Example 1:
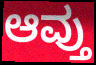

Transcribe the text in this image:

ಆವ್ತು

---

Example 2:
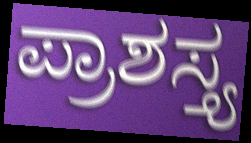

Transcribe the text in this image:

ಪ್ರಾಶಸ್ತ್ಯ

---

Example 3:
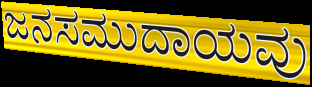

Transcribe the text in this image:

ಜನಸಮುದಾಯವು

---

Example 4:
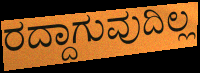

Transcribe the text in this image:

ರದ್ದಾಗುವುದಿಲ್ಲ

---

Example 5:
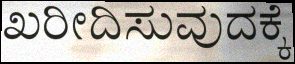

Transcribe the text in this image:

ಖರೀದಿಸುವುದಕ್ಕೆ